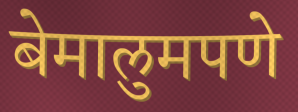
बेमालुमपणे